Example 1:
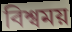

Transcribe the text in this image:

বিশ্বময়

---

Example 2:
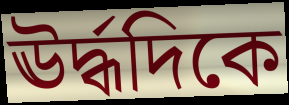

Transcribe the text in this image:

ঊর্দ্ধদিকে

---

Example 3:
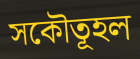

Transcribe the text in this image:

সকৌতূহল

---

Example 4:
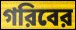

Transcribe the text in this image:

গরিবের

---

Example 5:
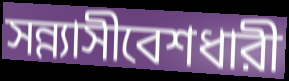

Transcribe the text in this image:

সন্ন্যাসীবেশধারী